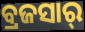
ବ୍ରଜସାର୍